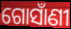
ଗୋସାଁଣୀ